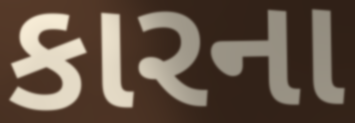
કારના